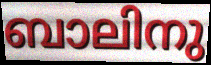
ബാലിനു